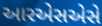
આરએસએસે